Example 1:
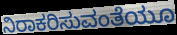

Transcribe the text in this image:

ನಿರಾಕರಿಸುವಂತೆಯೂ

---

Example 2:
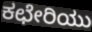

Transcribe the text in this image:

ಕಛೇರಿಯು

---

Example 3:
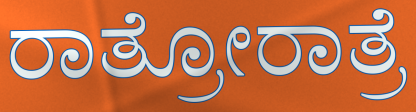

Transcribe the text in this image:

ರಾತ್ರೋರಾತ್ರೆ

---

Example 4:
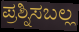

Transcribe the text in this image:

ಪ್ರಶ್ನಿಸಬಲ್ಲ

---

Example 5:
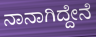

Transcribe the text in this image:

ನಾನಾಗಿದ್ದೇನೆ